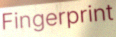
Fingerprint